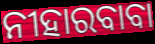
ନୀହାରବାବା